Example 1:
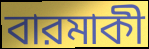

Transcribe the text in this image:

বারমাকী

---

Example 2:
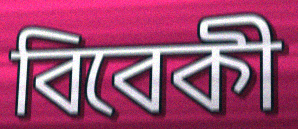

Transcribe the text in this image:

বিবেকী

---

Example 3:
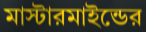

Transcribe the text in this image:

মাস্টারমাইন্ডের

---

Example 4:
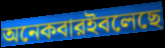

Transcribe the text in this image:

অনেকবারইবলেছে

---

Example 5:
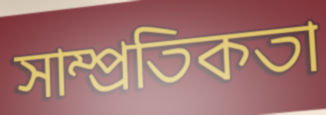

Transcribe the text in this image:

সাম্প্রতিকতা